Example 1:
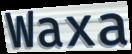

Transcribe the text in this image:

Waxa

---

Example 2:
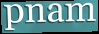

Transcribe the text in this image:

pnam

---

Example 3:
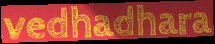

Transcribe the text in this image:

vedhadhara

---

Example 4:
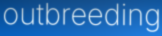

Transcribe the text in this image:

outbreeding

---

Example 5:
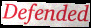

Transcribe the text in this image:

Defended